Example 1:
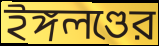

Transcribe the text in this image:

ইঙ্গলণ্ডের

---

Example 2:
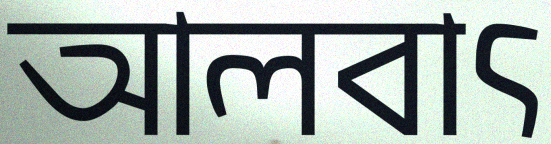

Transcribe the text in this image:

আলবাৎ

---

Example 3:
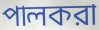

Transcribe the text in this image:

পালকরা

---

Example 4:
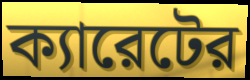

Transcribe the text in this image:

ক্যারেটের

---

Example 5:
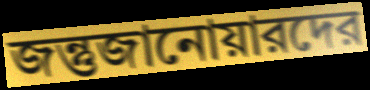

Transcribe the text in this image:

জন্তুজানোয়ারদের